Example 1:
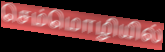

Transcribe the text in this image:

செம்மொழியில்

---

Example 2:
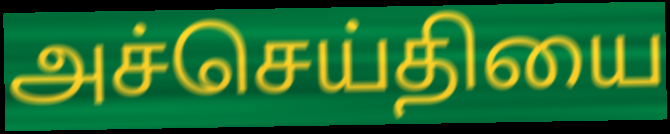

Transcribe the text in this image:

அச்செய்தியை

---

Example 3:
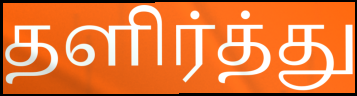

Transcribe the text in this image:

தளிர்த்து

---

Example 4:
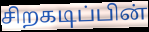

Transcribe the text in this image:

சிறகடிப்பின்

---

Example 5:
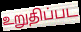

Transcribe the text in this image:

உறுதிப்பட